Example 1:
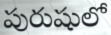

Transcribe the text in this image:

పురుషులో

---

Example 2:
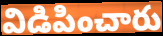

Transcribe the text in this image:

విడిపించారు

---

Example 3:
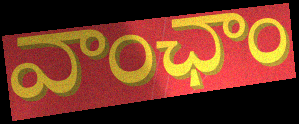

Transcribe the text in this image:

వాంఛాం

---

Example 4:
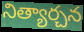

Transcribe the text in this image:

నిత్యార్చన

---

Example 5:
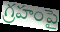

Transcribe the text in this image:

గ్రహంపై